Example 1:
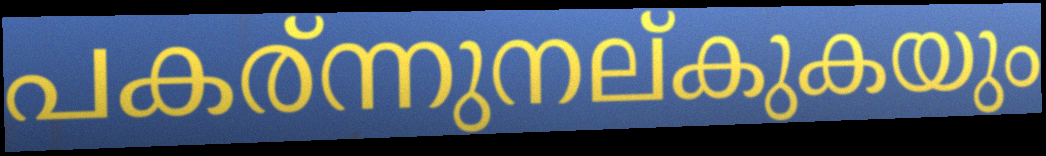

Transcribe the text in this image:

പകര്ന്നുനല്കുകയും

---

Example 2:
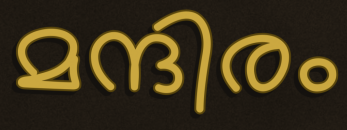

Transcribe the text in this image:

മന്ദിരം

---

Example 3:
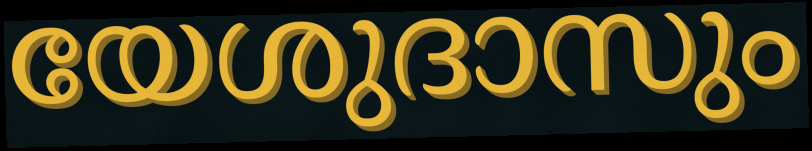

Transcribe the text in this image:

യേശുദാസും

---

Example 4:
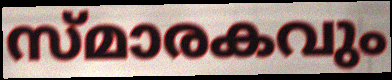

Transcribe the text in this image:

സ്മാരകവും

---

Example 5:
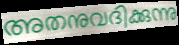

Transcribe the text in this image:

അതനുവദിക്കുന്നു